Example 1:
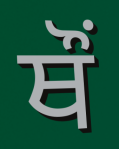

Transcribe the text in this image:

ਥੌਂ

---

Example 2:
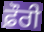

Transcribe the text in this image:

ਫ਼ੌਰੀ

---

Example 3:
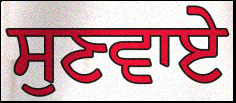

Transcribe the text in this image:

ਸੁਣਵਾਏ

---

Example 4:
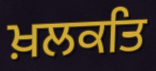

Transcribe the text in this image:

ਖ਼ਲਕਤਿ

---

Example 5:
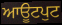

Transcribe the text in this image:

ਆਊਟਪੁਟ